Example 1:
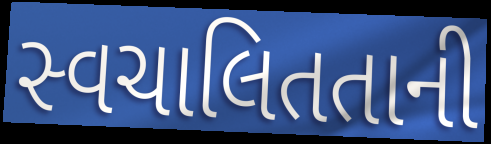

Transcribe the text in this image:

સ્વચાલિતતાની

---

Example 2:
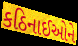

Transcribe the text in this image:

કઠિનાઈઓને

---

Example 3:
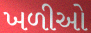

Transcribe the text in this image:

ખળીઓ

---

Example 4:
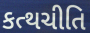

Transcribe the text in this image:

કત્થચીતિ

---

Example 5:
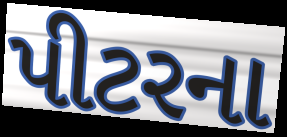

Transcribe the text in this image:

પીટરના